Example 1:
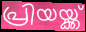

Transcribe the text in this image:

പ്രിയയ്ക്ക്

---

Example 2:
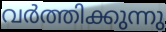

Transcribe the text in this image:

വർത്തിക്കുന്നു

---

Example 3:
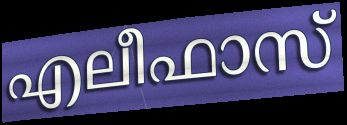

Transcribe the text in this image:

എലീഫാസ്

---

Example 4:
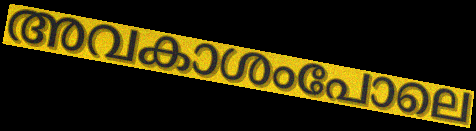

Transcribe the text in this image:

അവകാശംപോലെ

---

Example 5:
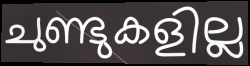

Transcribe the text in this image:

ചുണ്ടുകളില്ല